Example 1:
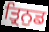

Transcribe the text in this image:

ਤ੍ਰਿਨੁਡ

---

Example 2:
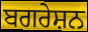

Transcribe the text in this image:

ਬਗਰੇਸ਼ਨ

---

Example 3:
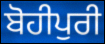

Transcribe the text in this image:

ਬੋਹੀਪੁਰੀ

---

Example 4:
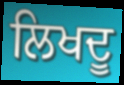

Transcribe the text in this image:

ਲਿਖਦੂ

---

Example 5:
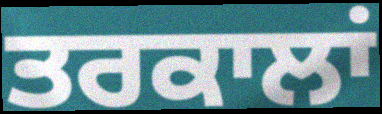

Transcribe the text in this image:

ਤਰਕਾਲਾਂ